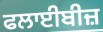
ਫਲਾਈਬੀਜ਼